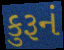
કુરૂનં